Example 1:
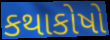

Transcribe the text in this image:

કથાકોષો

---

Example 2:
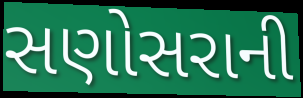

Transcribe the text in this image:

સણોસરાની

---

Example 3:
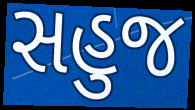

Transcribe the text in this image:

સહુજ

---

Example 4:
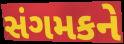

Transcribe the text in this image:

સંગમકને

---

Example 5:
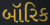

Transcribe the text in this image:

બૉરિક